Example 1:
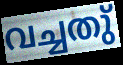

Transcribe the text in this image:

വച്ചതു്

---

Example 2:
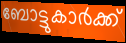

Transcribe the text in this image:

ബോട്ടുകാർക്ക്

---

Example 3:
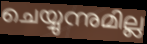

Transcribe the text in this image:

ചെയ്യുന്നുമില്ല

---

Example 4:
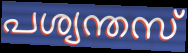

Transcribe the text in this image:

പശ്യന്തസ്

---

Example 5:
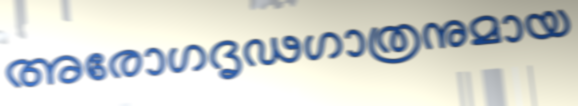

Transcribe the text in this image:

അരോഗദൃഢഗാത്രനുമായ